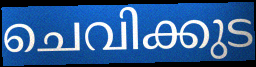
ചെവിക്കുട